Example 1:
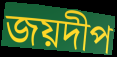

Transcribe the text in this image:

জয়দীপ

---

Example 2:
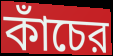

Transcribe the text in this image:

কাঁচের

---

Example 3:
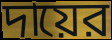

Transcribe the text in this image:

দায়ের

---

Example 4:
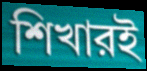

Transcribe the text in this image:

শিখারই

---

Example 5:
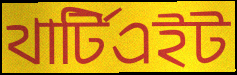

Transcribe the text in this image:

থার্টিএইট